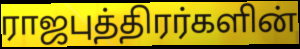
ராஜபுத்திரர்களின்